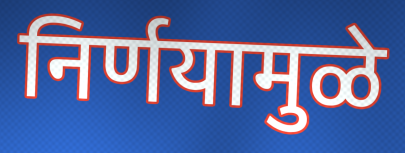
निर्णयामुळे